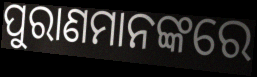
ପୁରାଣମାନଙ୍କରେ